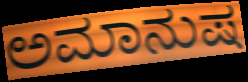
ಅಮಾನುಷ